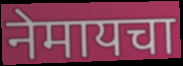
नेमायचा